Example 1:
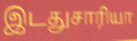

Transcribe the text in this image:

இடதுசாரியா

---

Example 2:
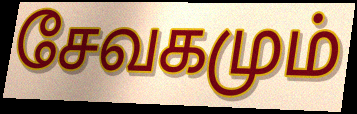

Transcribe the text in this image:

சேவகமும்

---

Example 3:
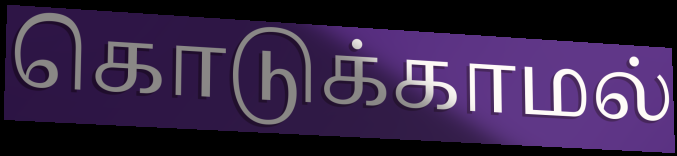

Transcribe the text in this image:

கொடுக்காமல்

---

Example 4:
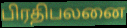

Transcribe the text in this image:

பிரதிபலனை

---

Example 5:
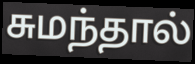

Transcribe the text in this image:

சுமந்தால்